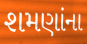
શમણાંના